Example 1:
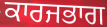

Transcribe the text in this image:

ਕਾਰਜਭਾਗ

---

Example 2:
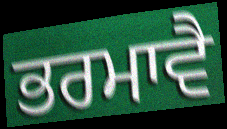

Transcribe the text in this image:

ਭਰਮਾਵੈ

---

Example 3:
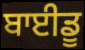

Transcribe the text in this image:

ਬਾਈਡੂ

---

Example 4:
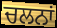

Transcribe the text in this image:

ਚਲਨਾਂ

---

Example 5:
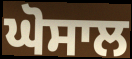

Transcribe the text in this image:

ਘੋਸਾਲ